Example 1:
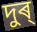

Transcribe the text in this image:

দুৰ্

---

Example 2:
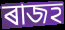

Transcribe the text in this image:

ৰাজহ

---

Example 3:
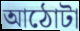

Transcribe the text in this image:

আঠোটা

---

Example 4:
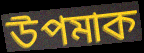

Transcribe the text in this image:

উপমাক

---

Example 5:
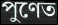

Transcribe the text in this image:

পুণেত